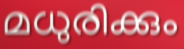
മധുരിക്കും